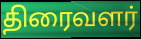
திரைவளர்